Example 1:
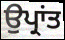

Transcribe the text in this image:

ਉਪ੍ਰਾਂਤ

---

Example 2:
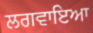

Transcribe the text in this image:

ਲਗਵਾਇਆ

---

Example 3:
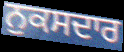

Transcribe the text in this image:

ਨੁਕਸਦਾਰ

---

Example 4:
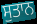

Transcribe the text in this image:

ਸੁਤਾਨ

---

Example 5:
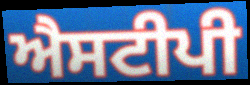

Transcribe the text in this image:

ਐਸਟੀਪੀ